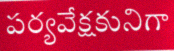
పర్యవేక్షకునిగా